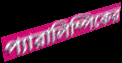
প্যারালিম্পিকের